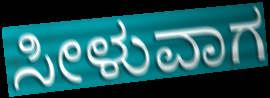
ಸೀಳುವಾಗ